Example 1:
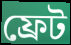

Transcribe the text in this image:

ফ্রেট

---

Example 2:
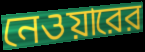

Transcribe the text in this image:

নেওয়ারের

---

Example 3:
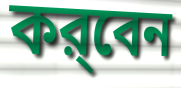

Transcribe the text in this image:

কর্‌বেন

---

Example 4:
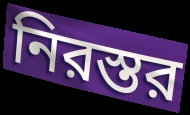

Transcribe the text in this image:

নিরস্তর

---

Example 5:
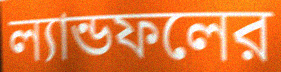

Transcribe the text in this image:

ল্যান্ডফলের